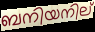
ബനിയനില്